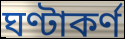
ঘণ্টাকর্ণ